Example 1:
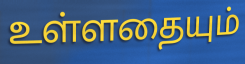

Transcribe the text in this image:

உள்ளதையும்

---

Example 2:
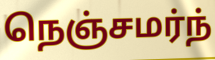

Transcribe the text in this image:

நெஞ்சமர்ந்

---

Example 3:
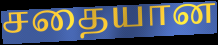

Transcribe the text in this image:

சதையான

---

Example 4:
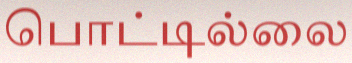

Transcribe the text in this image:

பொட்டில்லை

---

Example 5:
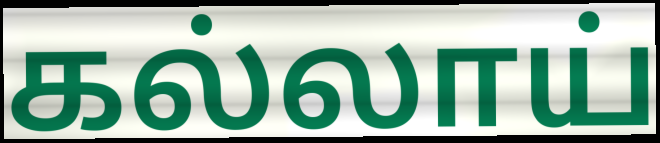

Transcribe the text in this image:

கல்லாய்